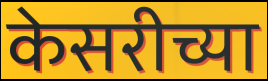
केसरीच्या